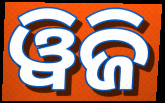
ୱିଜି